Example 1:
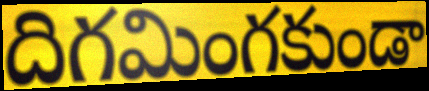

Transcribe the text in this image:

దిగమింగకుండా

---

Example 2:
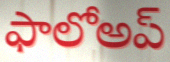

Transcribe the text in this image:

ఫాలోఅప్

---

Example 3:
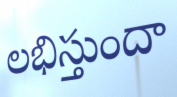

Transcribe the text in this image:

లభిస్తుందా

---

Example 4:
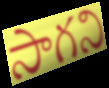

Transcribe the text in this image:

సాగని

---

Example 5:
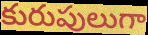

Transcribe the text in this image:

కురుపులుగా